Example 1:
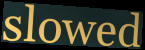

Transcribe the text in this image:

slowed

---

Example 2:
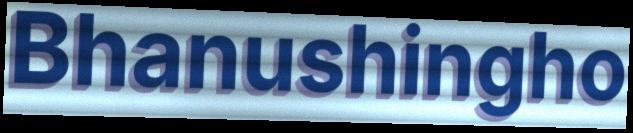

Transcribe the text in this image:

Bhanushingho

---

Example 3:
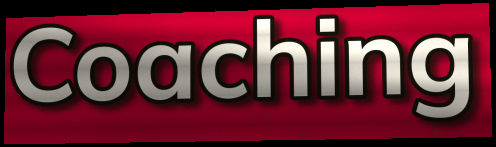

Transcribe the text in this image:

Coaching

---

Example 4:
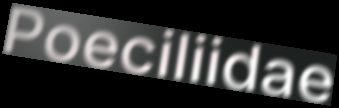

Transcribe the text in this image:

Poeciliidae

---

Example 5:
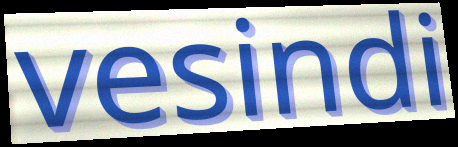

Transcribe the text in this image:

vesindi